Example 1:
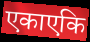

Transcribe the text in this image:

एकाएकि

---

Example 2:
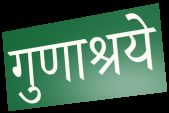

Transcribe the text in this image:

गुणाश्रये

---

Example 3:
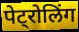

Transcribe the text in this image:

पेट्रोलिंग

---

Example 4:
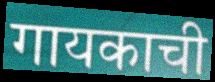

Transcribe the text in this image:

गायकाची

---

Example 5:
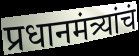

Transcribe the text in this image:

प्रधानमंत्र्यांचं